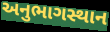
અનુભાગસ્થાન